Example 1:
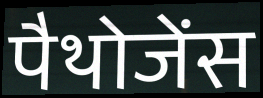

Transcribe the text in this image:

पैथोजेंस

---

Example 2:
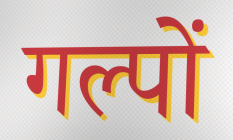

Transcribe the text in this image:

गल्पों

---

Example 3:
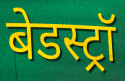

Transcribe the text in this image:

बेडस्ट्रॉ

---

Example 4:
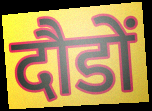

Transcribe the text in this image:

दौडों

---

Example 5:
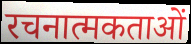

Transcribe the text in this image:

रचनात्मकताओं